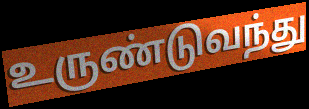
உருண்டுவந்து